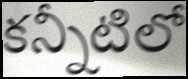
కన్నీటిలో